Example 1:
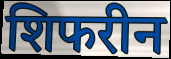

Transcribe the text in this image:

शिफरीन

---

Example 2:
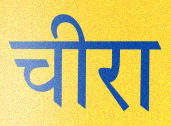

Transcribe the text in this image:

चीरा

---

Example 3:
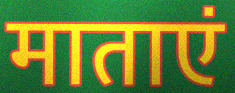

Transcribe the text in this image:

माताएं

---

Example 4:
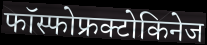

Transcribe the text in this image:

फॉस्फोफ्रक्टोकिनेज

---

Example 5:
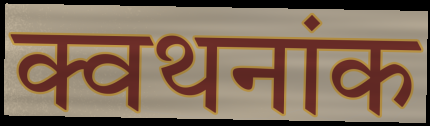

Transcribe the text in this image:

क्वथनांक